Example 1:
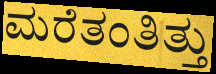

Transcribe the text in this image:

ಮರೆತಂತಿತ್ತು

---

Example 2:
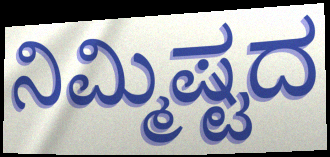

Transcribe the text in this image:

ನಿಮ್ಮಿಷ್ಟದ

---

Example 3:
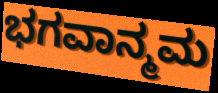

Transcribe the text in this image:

ಭಗವಾನ್ಮಮ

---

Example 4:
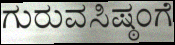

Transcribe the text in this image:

ಗುರುವಸಿಷ್ಠಂಗೆ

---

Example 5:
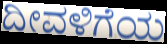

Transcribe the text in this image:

ದೀವಳಿಗೆಯ